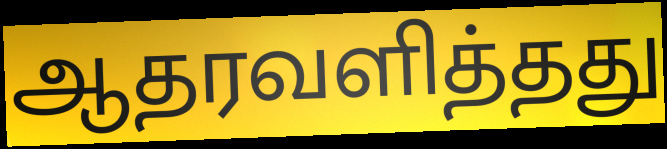
ஆதரவளித்தது